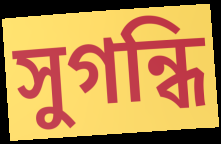
সুগন্ধি